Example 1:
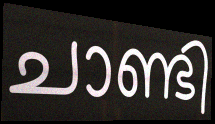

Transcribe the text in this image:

ചാണ്ടി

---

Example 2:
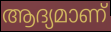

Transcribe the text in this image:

ആദ്യമാണ്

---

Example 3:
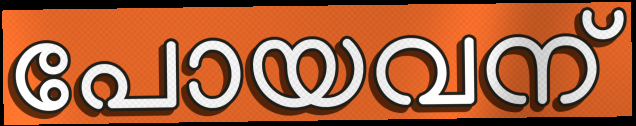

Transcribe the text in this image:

പോയവന്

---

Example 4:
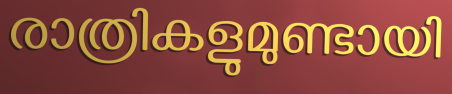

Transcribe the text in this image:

രാത്രികളുമുണ്ടായി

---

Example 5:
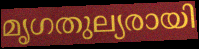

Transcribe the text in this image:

മൃഗതുല്യരായി